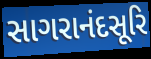
સાગરાનંદસૂરિ